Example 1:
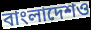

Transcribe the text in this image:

বাংলাদেশও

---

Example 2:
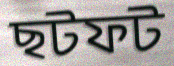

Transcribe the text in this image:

ছটফট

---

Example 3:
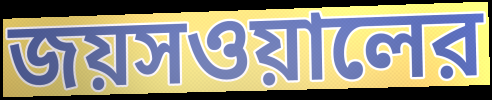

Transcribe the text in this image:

জয়সওয়ালের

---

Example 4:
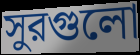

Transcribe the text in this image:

সুরগুলো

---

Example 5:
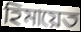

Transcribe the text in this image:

হিমায়েত